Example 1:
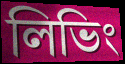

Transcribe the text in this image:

লিভিং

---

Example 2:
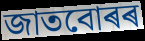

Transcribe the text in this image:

জাতবোৰৰ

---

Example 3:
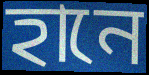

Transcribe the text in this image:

হানে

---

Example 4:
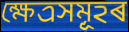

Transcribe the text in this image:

ক্ষেত্ৰসমূহৰ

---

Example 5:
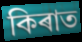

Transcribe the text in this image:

কিৰাত